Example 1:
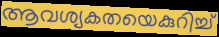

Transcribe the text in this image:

ആവശ്യകതയെകുറിച്ച്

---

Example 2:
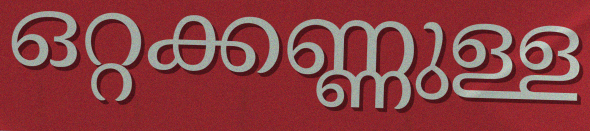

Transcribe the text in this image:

ഒറ്റക്കണ്ണുള്ള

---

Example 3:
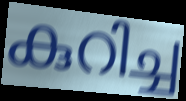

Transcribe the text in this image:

കുറിച്ച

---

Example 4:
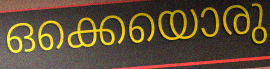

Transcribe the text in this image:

ഒക്കെയൊരു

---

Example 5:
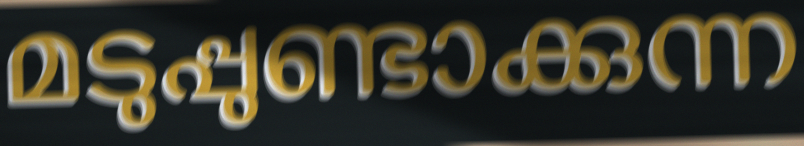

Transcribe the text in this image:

മടുപ്പുണ്ടാക്കുന്ന